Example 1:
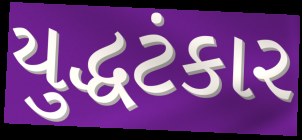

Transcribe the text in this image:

યુદ્ધટંકાર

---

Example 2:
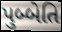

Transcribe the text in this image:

પુબ્બેતિ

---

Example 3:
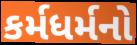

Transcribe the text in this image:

કર્મધર્મનો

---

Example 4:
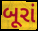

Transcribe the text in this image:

બૂરાં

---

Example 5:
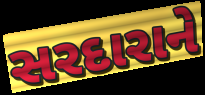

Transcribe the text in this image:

સરદારાને